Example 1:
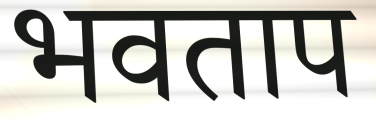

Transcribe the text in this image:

भवताप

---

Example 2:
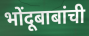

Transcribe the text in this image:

भोंदूबाबांची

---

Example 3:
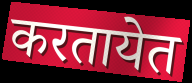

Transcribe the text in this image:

करतायेत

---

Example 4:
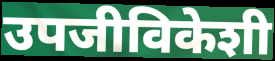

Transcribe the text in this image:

उपजीविकेशी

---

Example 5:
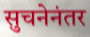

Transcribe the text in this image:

सुचनेनंतर